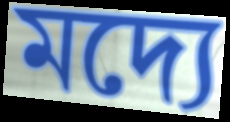
মদ্যে